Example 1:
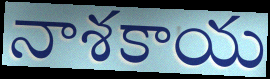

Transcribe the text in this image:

నాశకాయ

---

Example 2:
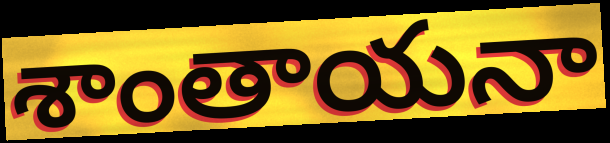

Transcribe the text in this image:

శాంతాయనా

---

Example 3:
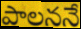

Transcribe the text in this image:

పాలననే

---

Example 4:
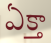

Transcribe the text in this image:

ఏక్తా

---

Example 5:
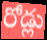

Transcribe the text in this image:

రోడ్లు